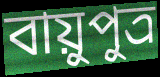
বায়ুপুত্র